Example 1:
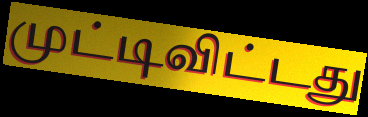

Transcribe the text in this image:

முட்டிவிட்டது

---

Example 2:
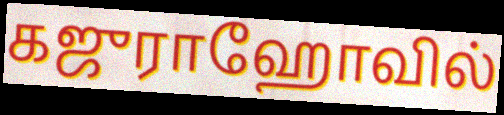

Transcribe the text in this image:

கஜுராஹோவில்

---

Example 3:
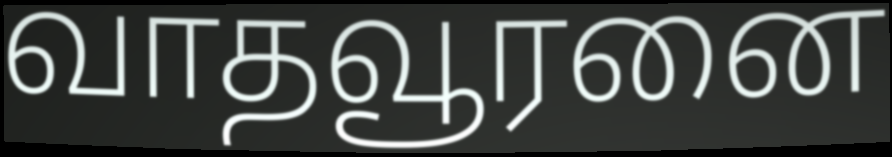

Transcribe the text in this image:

வாதவூரனை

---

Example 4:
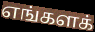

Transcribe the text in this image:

எங்களக்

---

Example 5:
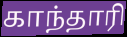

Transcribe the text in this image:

காந்தாரி